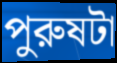
পুরুষটা